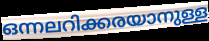
ഒന്നലറിക്കരയാനുള്ള